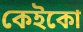
কেইকো